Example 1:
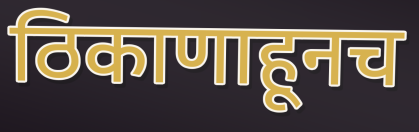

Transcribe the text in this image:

ठिकाणाहूनच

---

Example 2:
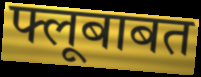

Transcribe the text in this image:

फ्लूबाबत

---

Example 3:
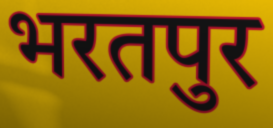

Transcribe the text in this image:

भरतपुर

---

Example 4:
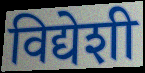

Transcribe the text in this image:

विद्येशी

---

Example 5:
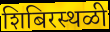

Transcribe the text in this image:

शिबिरस्थळी